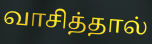
வாசித்தால்